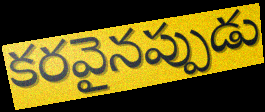
కరవైనప్పుడు